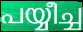
പയ്യീച്ച